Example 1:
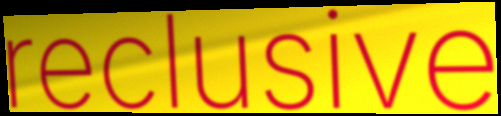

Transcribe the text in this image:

reclusive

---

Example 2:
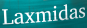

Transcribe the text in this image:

Laxmidas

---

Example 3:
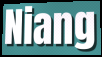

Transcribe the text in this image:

Niang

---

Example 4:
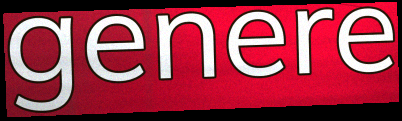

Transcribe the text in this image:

genere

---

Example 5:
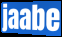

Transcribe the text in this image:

jaabe